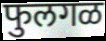
फुलगळ